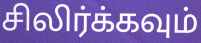
சிலிர்க்கவும்